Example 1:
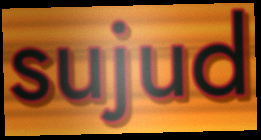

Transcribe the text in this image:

sujud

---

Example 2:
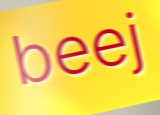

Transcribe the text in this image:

beej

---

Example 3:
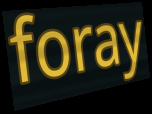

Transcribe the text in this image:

foray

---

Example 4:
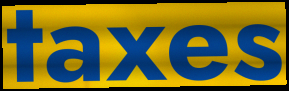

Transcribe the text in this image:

taxes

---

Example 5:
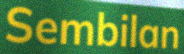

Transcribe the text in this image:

Sembilan